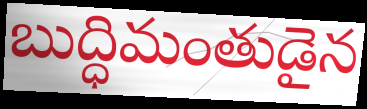
బుద్ధిమంతుడైన